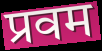
प्रवम